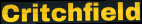
Critchfield